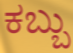
ಕಬ್ಬು